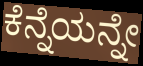
ಕೆನ್ನೆಯನ್ನೇ